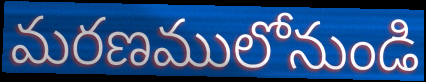
మరణములోనుండి